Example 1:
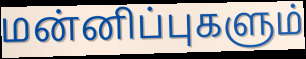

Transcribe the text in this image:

மன்னிப்புகளும்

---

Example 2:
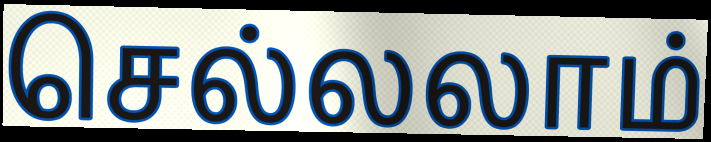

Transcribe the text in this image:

செல்லலாம்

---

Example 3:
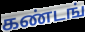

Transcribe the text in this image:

கண்டங்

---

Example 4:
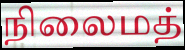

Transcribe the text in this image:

நிலைமத்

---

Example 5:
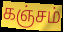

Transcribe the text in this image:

கஞ்சம்